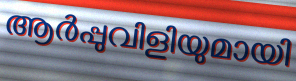
ആർപ്പുവിളിയുമായി